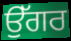
ਉੱਗਰ